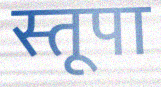
स्तूपा